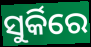
ସୁର୍କିରେ